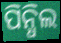
ପିନ୍ଧିଲ